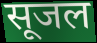
सूजल